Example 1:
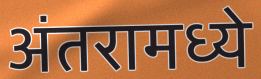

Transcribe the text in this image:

अंतरामध्ये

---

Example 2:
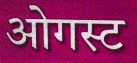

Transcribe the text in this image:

ओगस्ट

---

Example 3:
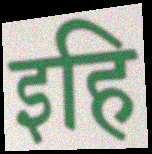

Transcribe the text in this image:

इहि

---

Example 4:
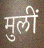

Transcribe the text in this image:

मुलीं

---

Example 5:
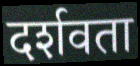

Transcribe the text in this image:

दर्शवता